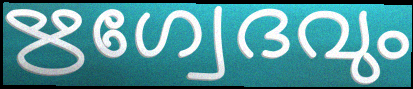
ഋഗ്വേദവും